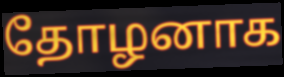
தோழனாக